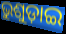
ଭୁଶୁଡ଼ାଇ